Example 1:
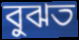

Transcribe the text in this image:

বুঝত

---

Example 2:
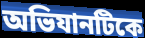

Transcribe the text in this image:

অভিযানটিকে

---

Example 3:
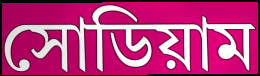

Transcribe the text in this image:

সোডিয়াম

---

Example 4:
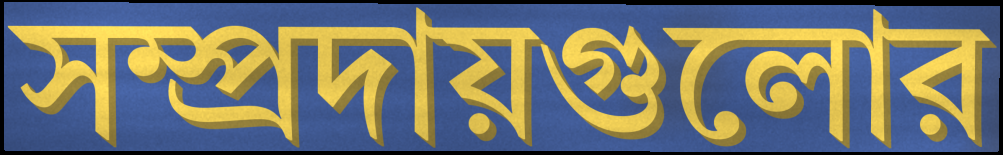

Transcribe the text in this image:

সম্প্রদায়গুলোর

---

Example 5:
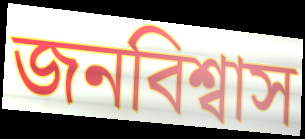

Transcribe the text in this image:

জনবিশ্বাস